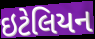
ઇટેલિયન